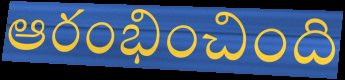
ఆరంభించింది